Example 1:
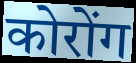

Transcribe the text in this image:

कोरोंग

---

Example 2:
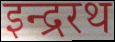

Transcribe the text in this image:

इन्द्ररथ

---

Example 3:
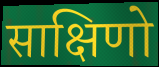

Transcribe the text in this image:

साक्षिणो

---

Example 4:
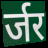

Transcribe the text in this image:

र्जर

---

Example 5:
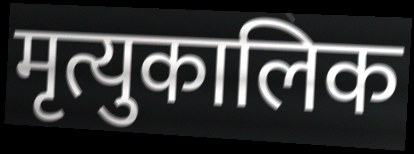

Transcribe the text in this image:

मृत्युकालिक